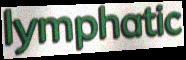
lymphatic